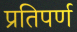
प्रतिपर्ण